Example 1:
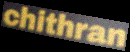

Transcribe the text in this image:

chithran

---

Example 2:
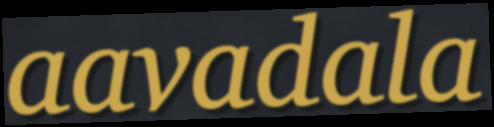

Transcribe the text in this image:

aavadala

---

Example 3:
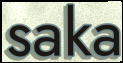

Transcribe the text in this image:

saka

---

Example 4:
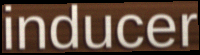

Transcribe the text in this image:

inducer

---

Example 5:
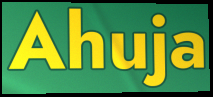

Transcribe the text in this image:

Ahuja